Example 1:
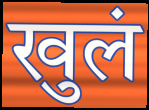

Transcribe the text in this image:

खुलं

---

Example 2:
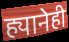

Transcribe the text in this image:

ह्यानेही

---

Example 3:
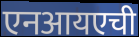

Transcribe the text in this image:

एनआयएची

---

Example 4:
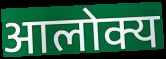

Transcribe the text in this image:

आलोक्य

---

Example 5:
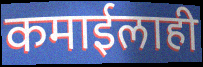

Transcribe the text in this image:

कमाईलाही